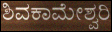
ಶಿವಕಾಮೇಶ್ವರಿ